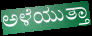
ಅಳೆಯುತ್ತಾ